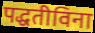
पद्धतीविना